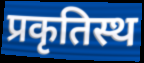
प्रकृतिस्थ